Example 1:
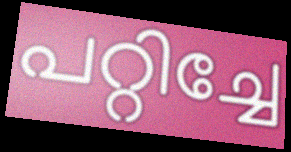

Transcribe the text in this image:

പറ്റിച്ചേ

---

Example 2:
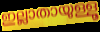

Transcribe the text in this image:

ഇല്ലാതായുള്ളൂ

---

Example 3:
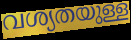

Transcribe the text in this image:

വശ്യതയുള്ള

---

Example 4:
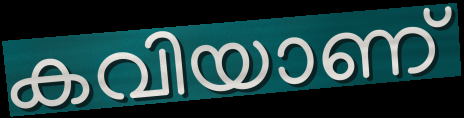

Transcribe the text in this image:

കവിയാണ്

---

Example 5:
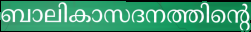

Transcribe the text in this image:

ബാലികാസദനത്തിന്റെ